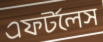
এফর্টলেস